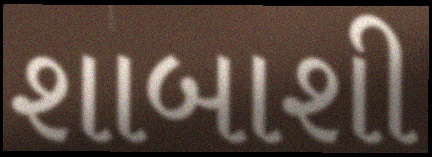
શાબાશી